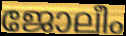
ജോലീം